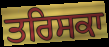
ਤਰਿਸਕਾ